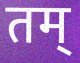
तम्